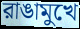
রাঙামুখে